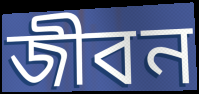
জীবন